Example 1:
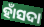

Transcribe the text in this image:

ହାଁସଦା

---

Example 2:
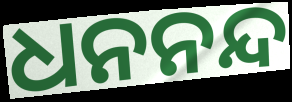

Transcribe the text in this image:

ଧନନନ୍ଦ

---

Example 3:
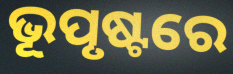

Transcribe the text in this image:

ଭୂପୃଷ୍ଟରେ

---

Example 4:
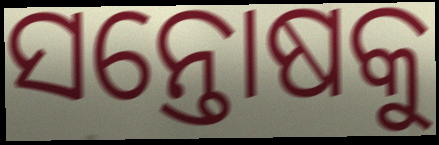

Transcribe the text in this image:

ସନ୍ତୋଷକୁ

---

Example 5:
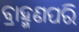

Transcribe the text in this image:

ବ୍ରାହ୍ମଣପରି